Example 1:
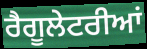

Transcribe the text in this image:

ਰੈਗੂਲੇਟਰੀਆਂ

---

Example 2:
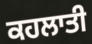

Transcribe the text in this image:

ਕਹਲਾਤੀ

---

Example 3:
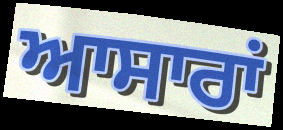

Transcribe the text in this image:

ਆਸਾਰਾਂ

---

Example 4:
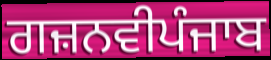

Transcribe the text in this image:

ਗਜ਼ਨਵੀਪੰਜਾਬ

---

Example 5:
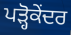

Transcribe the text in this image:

ਪੜ੍ਹੋਕੇਂਦਰ